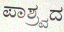
ಪಾಶ್ರ್ವದ